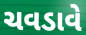
ચવડાવે